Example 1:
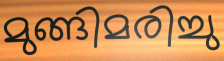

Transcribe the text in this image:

മുങ്ങിമരിച്ചു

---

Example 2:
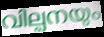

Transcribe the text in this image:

വില്പനയും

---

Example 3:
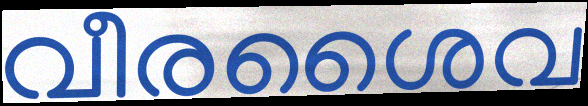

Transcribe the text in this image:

വീരശൈവ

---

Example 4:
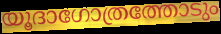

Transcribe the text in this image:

യൂദാഗോത്രത്തോടും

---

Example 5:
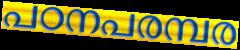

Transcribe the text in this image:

പഠനപരമ്പര